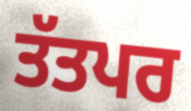
ਤੱਤਪਰ